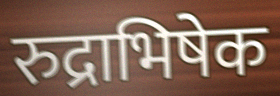
रुद्राभिषेक